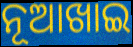
ନୂଆଖାଇ